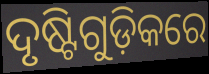
ଦୃଷ୍ଟିଗୁଡ଼ିକରେ